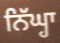
ਨਿੱਘ੍ਹਾ